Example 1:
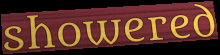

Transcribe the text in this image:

showered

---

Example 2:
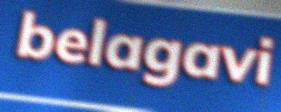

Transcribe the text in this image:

belagavi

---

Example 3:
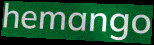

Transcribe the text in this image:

hemango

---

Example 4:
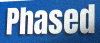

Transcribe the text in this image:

Phased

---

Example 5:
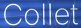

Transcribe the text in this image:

Collet